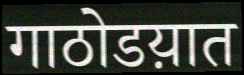
गाठोडय़ात